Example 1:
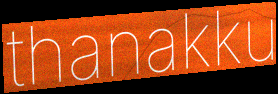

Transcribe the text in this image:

thanakku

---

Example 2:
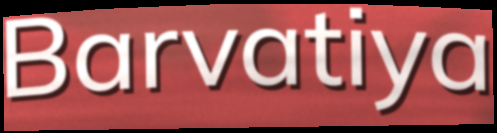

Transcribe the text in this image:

Barvatiya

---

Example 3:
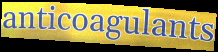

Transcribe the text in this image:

anticoagulants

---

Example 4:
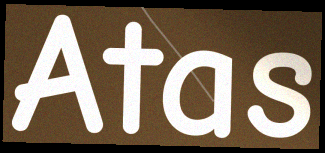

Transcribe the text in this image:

Atas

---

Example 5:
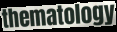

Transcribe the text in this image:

thematology